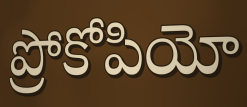
ప్రోకోపియో